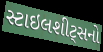
સ્ટાઇલશીટ્સનો